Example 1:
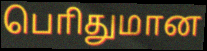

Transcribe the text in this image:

பெரிதுமான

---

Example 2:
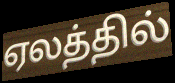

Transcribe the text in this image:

ஏலத்தில்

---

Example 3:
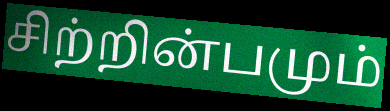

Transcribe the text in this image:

சிற்றின்பமும்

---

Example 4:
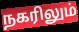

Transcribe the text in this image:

நகரிலும்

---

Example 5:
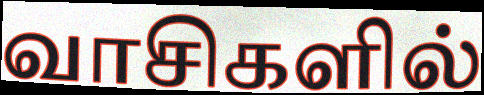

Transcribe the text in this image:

வாசிகளில்